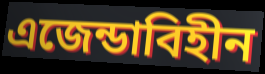
এজেন্ডাবিহীন